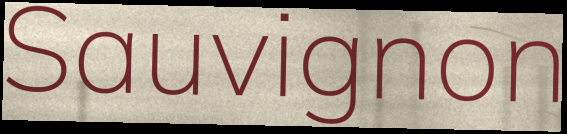
Sauvignon